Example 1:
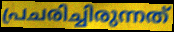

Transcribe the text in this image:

പ്രചരിച്ചിരുന്നത്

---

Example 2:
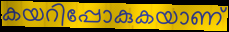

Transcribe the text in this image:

കയറിപ്പോകുകയാണ്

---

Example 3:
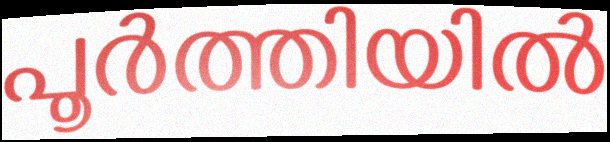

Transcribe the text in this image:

പൂർത്തിയിൽ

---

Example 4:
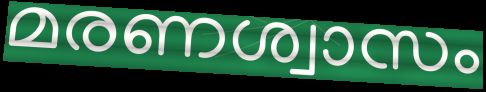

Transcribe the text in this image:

മരണശ്വാസം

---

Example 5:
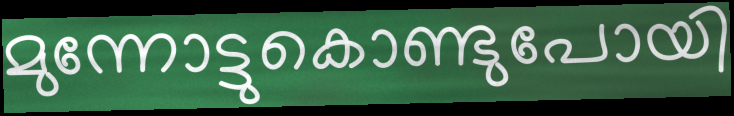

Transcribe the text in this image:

മുന്നോട്ടുകൊണ്ടുപോയി